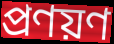
প্ৰণয়ণ